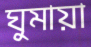
ঘুমায়া